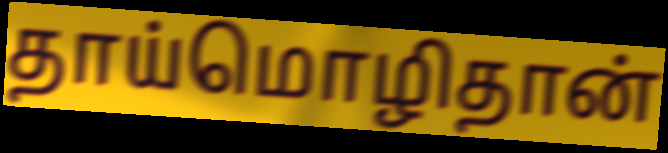
தாய்மொழிதான்